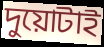
দুয়োটাই